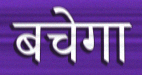
बचेगा